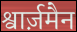
श्वार्ज़मैन